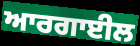
ਆਰਗਾਈਲ